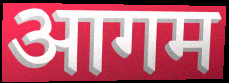
आगम